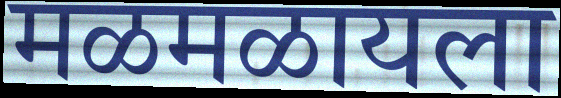
मळमळायला